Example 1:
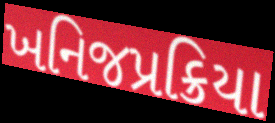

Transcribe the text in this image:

ખનિજપ્રક્રિયા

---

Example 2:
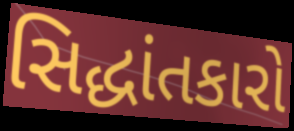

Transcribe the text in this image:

સિદ્ધાંતકારો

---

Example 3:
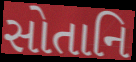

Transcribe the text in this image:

સોતાનિ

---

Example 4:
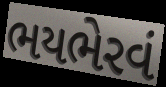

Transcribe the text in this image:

ભયભેરવં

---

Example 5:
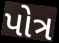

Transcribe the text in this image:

પોત્ર